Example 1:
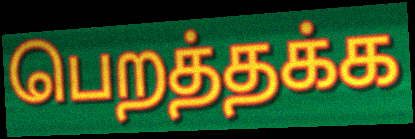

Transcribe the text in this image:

பெறத்தக்க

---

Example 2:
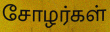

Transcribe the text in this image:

சோழர்கள்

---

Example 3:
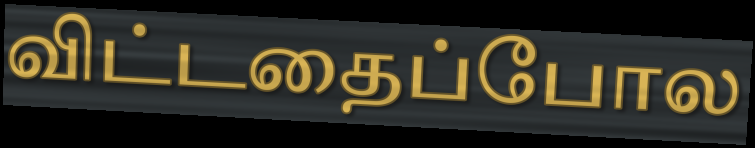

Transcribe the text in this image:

விட்டதைப்போல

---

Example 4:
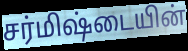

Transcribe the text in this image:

சர்மிஷ்டையின்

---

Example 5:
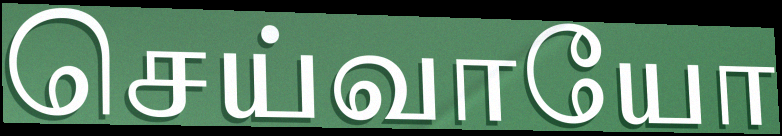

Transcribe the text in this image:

செய்வாயோ